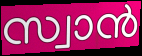
സ്വാൻ